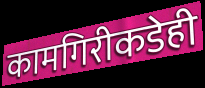
कामगिरीकडेही